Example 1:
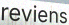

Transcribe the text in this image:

reviens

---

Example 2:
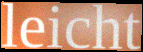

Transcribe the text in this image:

leicht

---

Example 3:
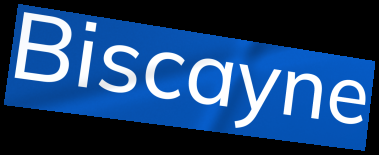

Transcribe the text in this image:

Biscayne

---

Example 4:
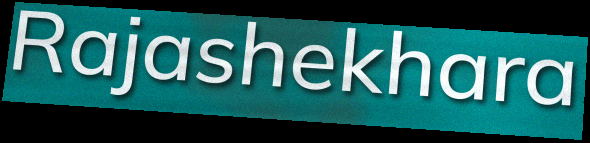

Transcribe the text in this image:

Rajashekhara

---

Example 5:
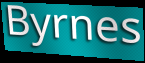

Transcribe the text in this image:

Byrnes